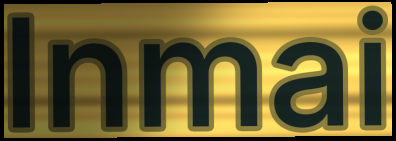
Inmai